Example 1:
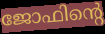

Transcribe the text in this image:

ജോഫിന്റെ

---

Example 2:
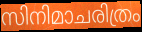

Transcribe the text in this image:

സിനിമാചരിത്രം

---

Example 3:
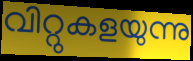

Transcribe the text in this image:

വിറ്റുകളയുന്നു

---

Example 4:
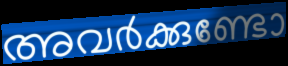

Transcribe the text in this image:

അവർക്കുണ്ടോ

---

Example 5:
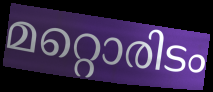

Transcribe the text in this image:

മറ്റൊരിടം